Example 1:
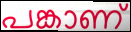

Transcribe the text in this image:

പങ്കാണ്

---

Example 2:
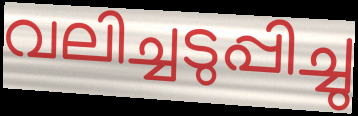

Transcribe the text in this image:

വലിച്ചടുപ്പിച്ചു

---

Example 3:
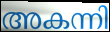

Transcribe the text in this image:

അകന്നി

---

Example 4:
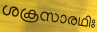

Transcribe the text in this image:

ശക്രസാരഥിഃ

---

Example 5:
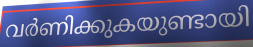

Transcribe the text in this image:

വർണിക്കുകയുണ്ടായി